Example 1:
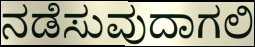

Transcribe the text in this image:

ನಡೆಸುವುದಾಗಲಿ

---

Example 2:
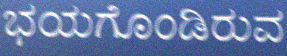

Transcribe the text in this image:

ಭಯಗೊಂಡಿರುವ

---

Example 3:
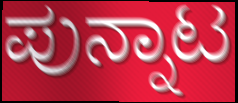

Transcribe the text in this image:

ಪುನ್ನಾಟ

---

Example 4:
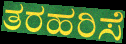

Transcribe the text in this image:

ತರಹರಿಸೆ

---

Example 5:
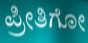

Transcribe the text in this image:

ಪ್ರೀತಿಗೋ